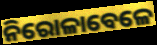
ନିରୋଳାବେଳେ